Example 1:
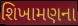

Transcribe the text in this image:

શિખામણના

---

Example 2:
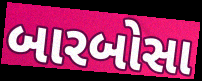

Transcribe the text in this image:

બારબોસા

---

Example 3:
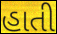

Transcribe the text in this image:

હાતી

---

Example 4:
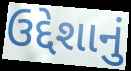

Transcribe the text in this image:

ઉદ્દેશાનું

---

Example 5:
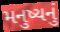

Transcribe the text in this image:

મનુષ્યનું